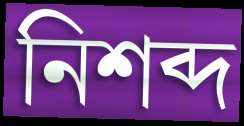
নিশব্দ